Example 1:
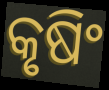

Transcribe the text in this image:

କୃଷିଂ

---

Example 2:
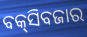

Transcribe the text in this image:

ବକ୍‌ସିବଜାର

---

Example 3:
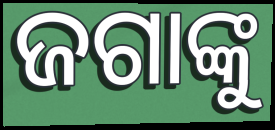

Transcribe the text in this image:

ଜଗାଙ୍କୁ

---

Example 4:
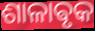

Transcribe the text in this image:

ଶାଳାଵୃକ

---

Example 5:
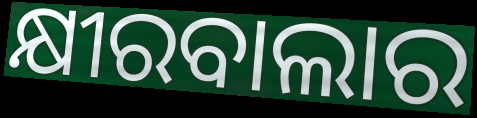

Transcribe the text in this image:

କ୍ଷୀରବାଲାର